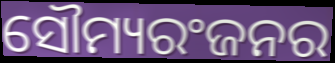
ସୌମ୍ୟରଂଜନର